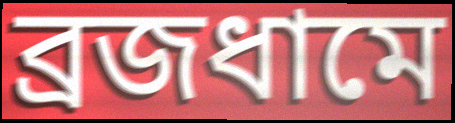
ব্রজধামে